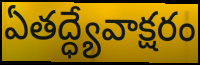
ఏతద్ధ్యేవాక్షరం